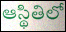
ఆస్థితిలో